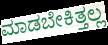
ಮಾಡಬೇಕಿತ್ತಲ್ಲ